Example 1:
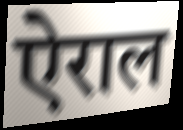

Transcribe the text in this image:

ऐराल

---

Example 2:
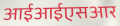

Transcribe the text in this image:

आईआईएसआर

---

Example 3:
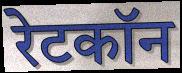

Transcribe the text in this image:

रेटकॉन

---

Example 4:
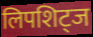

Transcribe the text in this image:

लिपशिट्ज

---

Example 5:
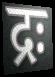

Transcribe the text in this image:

द्रः